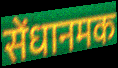
सेंधानमक